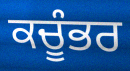
ਕਚੂੰਭਰ